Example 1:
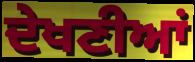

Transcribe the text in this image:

ਦੇਖਣੀਆਂ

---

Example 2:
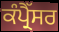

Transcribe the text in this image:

ਕੰਪ੍ਰੈੱਸਰ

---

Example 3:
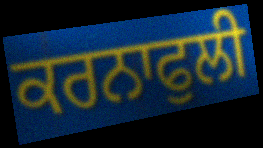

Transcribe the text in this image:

ਕਰਨਾਫੁਲੀ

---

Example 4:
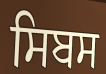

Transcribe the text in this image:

ਸਿਬਸ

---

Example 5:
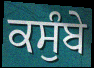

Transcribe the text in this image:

ਕਸੁੰਬੇ